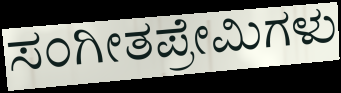
ಸಂಗೀತಪ್ರೇಮಿಗಳು